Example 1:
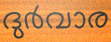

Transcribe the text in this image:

ദുർവാര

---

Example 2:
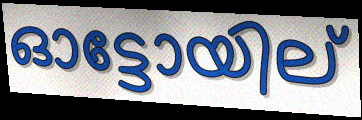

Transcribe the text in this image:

ഓട്ടോയില്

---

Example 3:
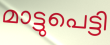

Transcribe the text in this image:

മാട്ടുപെട്ടി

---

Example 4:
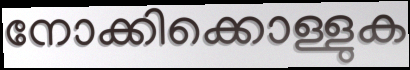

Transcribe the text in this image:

നോക്കിക്കൊള്ളുക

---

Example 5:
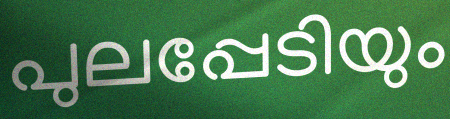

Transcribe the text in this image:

പുലപ്പേടിയും